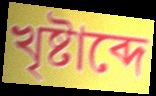
খৃষ্টাব্দে